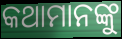
କଥାମାନଙ୍କୁ